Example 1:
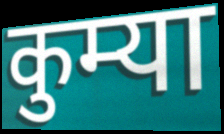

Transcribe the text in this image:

कुम्या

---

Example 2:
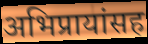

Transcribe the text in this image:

अभिप्रायांसह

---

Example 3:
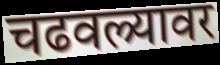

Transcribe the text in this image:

चढवल्यावर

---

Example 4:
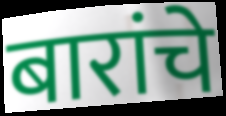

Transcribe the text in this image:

बारांचे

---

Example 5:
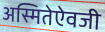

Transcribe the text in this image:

अस्मितेऐवजी